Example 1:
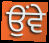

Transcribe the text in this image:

ਉੰਵੇ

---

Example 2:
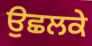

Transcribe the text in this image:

ਉਛਲਕੇ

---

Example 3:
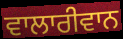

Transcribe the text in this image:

ਵਾਲਾਰੀਵਾਨ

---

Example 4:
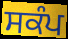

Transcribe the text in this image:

ਸਕੰਪ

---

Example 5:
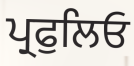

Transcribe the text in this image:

ਪ੍ਰਫੁਲਿਓ